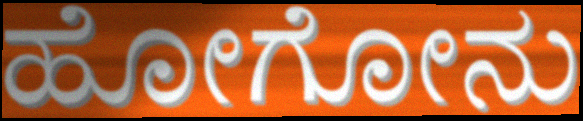
ಹೋಗೋನು